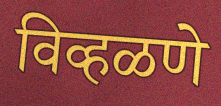
विव्हळणे